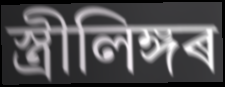
স্ত্ৰীলিঙ্গৰ